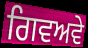
ਗਿਵਅਵੇ